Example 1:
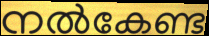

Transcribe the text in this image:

നൽകേണ്ട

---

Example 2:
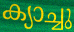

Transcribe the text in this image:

ക്യാച്ചു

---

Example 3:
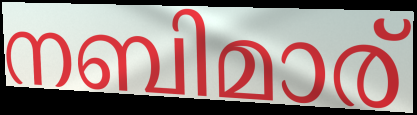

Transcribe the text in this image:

നബിമാര്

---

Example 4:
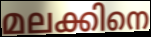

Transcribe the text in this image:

മലക്കിനെ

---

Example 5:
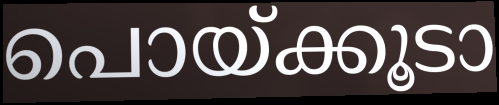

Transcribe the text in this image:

പൊയ്ക്കൂടാ